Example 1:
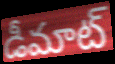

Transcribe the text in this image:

డీమాట్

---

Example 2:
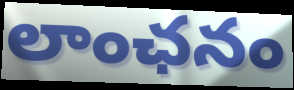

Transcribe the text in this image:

లాంఛనం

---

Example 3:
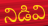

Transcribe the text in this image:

నిడివి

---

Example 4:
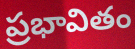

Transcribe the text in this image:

ప్రభావితం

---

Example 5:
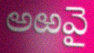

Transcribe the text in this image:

అఱవై